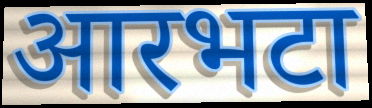
आरभटा